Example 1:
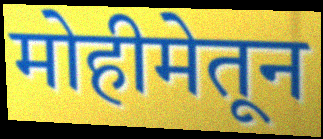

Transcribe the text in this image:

मोहीमेतून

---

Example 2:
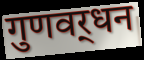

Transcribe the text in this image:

गुणवर्धन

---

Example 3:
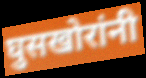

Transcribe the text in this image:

घुसखोरांनी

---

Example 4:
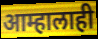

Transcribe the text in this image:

आम्हालाही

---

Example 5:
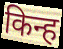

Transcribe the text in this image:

किन्ह